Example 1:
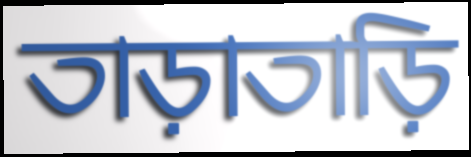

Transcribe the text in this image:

তাড়াতাড়ি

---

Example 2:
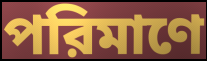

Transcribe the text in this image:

পরিমাণে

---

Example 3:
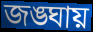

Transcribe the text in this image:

জঙ্ঘায়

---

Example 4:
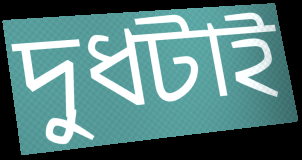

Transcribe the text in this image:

দুধটাই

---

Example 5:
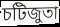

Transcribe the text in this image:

চটিজুতা